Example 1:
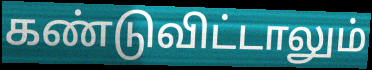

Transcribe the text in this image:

கண்டுவிட்டாலும்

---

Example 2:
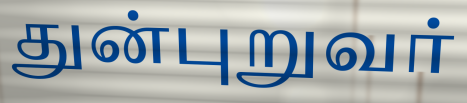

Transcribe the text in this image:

துன்புறுவர்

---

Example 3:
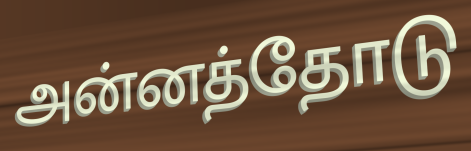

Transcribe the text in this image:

அன்னத்தோடு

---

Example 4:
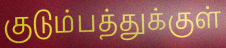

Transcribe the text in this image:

குடும்பத்துக்குள்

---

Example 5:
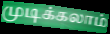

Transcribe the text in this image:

முடிக்கலாம்